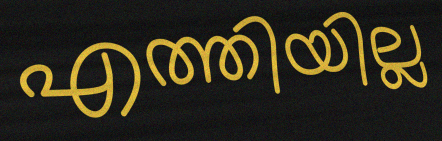
എത്തിയില്ല